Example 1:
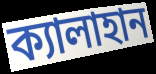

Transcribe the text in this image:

ক্যালাহান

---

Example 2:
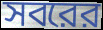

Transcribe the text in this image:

সবরের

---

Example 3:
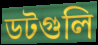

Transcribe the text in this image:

ডটগুলি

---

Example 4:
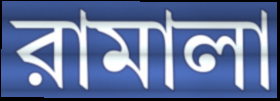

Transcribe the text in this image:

রামালা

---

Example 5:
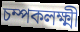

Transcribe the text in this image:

চম্পকলক্ষ্মী